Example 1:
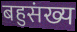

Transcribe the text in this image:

बहुसंख्य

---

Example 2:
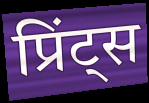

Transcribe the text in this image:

प्रिंट्स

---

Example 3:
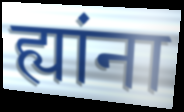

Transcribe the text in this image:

ह्यांना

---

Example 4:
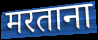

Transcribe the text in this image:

मरताना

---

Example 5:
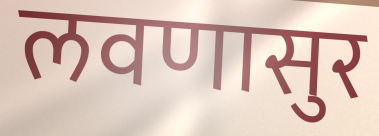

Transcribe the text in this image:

लवणासुर